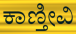
ಕಾಣ್ತೀವಿ